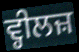
ਵ੍ਹੀਲਜ਼